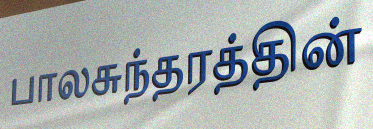
பாலசுந்தரத்தின்